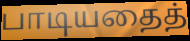
பாடியதைத்